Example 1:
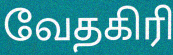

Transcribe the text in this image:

வேதகிரி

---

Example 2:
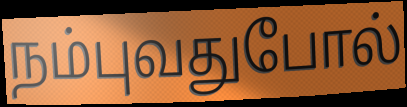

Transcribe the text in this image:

நம்புவதுபோல்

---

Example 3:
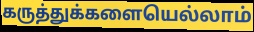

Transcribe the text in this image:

கருத்துக்களையெல்லாம்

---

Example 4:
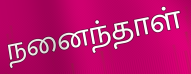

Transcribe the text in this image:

நனைந்தாள்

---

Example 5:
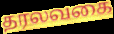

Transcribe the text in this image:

தரலவகை